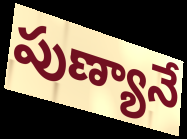
పుణ్యానే